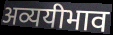
अव्ययीभाव